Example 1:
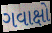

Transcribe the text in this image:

ગવાક્ષો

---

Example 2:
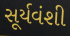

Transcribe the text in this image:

સૂર્યવંશી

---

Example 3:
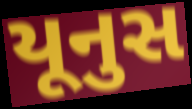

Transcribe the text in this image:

યૂનુસ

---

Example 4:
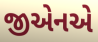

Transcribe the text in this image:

જીએનએ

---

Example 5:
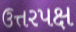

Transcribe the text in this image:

ઉત્તરપક્ષ